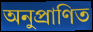
অনুপ্রাণিত